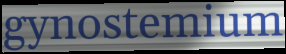
gynostemium